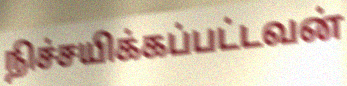
நிச்சயிக்கப்பட்டவன்